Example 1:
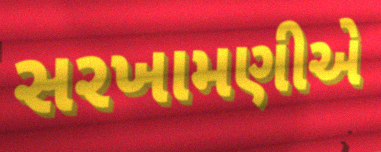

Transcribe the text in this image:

સરખામણીએ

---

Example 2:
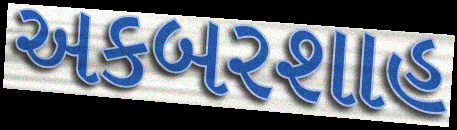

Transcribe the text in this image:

અકબરશાહ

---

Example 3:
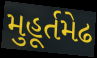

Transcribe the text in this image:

મુહૂર્તમેઢ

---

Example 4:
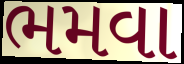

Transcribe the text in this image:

ભમવા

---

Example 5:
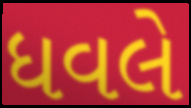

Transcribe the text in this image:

ધવલે